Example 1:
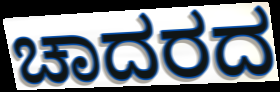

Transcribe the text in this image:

ಚಾದರದ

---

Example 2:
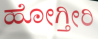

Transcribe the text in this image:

ಹೋಗ್ತೀರಿ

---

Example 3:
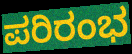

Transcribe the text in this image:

ಪರಿರಂಭ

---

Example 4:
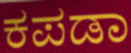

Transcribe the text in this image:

ಕಪಡಾ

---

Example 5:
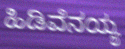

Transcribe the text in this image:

ಹಿಡಿವೆನಯ್ಯ